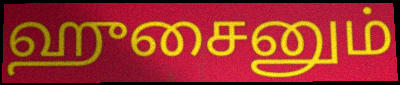
ஹுசைனும்